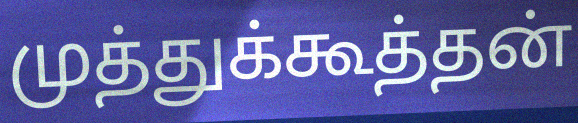
முத்துக்கூத்தன்